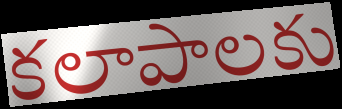
కలాపాలకు